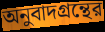
অনুবাদগ্রন্থের